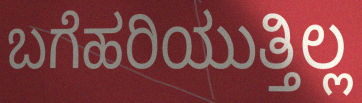
ಬಗೆಹರಿಯುತ್ತಿಲ್ಲ